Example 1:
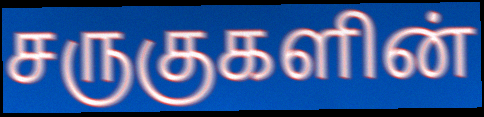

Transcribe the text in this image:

சருகுகளின்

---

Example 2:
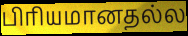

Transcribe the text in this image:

பிரியமானதல்ல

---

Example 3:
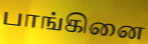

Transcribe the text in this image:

பாங்கினை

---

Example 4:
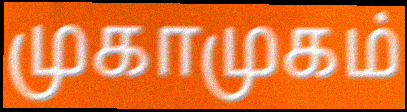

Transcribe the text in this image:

முகாமுகம்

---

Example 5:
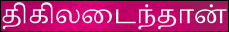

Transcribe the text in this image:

திகிலடைந்தான்